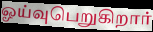
ஓய்வுபெறுகிறார்